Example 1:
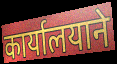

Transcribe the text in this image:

कार्यालयाने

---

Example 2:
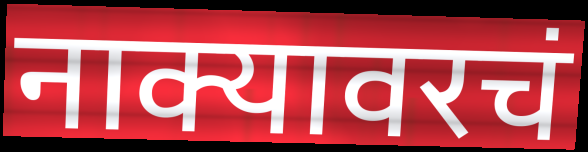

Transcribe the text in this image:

नाक्यावरचं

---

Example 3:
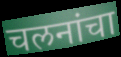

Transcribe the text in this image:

चलनांचा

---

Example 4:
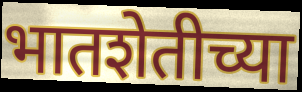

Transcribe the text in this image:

भातशेतीच्या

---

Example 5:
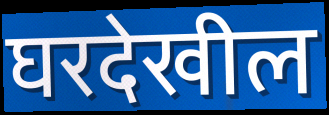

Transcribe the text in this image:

घरदेखील